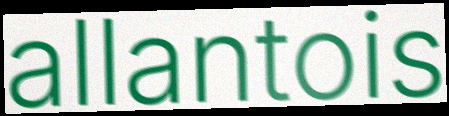
allantois